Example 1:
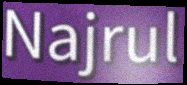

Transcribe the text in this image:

Najrul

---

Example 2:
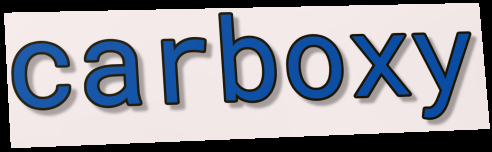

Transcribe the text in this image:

carboxy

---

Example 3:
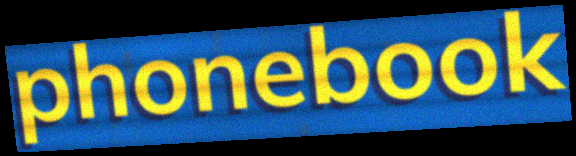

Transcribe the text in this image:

phonebook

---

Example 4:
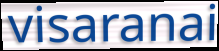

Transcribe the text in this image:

visaranai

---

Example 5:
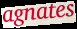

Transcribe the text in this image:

agnates